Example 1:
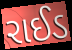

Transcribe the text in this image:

રાઈડ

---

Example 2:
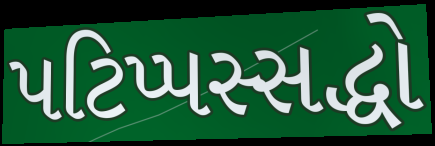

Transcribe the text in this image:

પટિપ્પસ્સદ્ધો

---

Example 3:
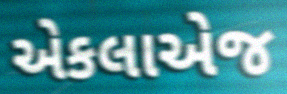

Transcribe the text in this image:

એકલાએજ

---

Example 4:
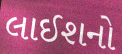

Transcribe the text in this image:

લાઈશનો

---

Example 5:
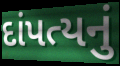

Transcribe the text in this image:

દાંપત્યનું